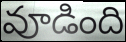
వూడింది